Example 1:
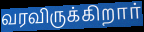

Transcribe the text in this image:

வரவிருக்கிறார்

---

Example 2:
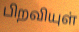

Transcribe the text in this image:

பிறவியுள்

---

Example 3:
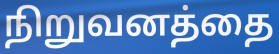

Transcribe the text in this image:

நிறுவனத்தை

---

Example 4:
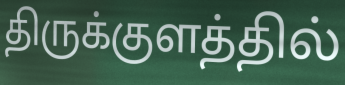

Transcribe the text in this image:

திருக்குளத்தில்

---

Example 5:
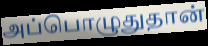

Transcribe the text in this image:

அப்பொழுதுதான்